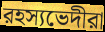
রহস্যভেদীরা